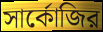
সার্কোজির